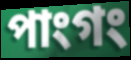
পাংগং